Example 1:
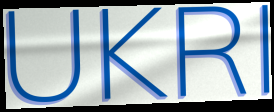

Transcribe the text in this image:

UKRI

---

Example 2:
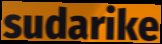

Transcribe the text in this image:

sudarike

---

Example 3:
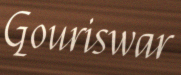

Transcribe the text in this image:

Gouriswar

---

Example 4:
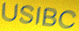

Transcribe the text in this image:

USIBC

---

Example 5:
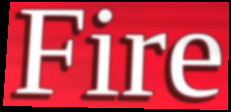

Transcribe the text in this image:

Fire